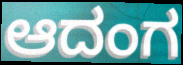
ಆದಂಗ